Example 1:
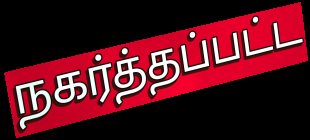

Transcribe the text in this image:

நகர்த்தப்பட்ட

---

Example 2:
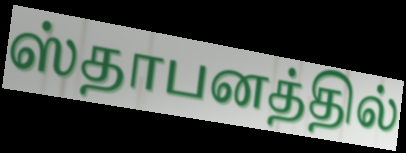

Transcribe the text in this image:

ஸ்தாபனத்தில்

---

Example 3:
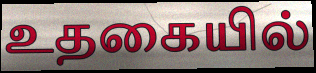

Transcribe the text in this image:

உதகையில்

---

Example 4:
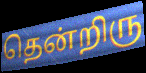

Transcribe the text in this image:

தென்றிரு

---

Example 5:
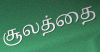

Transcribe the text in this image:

சூலத்தை